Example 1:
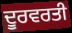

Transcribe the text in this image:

ਦੂਰਵਰਤੀ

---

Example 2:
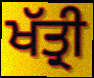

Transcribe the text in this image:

ਖੱਤ੍ਰੀ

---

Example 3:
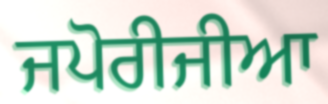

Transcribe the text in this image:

ਜਪੋਰੀਜੀਆ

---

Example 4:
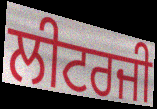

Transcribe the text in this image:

ਲੀਟਰਜੀ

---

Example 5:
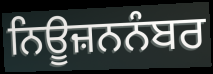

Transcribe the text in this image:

ਨਿਊਜ਼ਨਨੰਬਰ